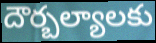
దౌర్బల్యాలకు